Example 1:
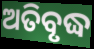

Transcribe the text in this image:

ଅତିବୃଦ୍ଧ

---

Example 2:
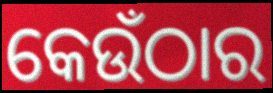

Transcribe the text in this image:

କେଉଁଠାର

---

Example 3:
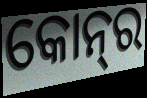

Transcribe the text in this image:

କୋନ୍‌ର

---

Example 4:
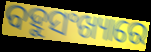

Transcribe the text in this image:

ବହୁସଂଖ୍ୟାରେ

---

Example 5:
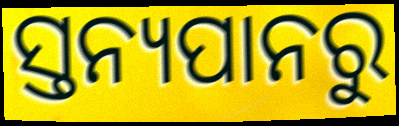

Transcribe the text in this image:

ସ୍ତନ୍ୟପାନରୁ